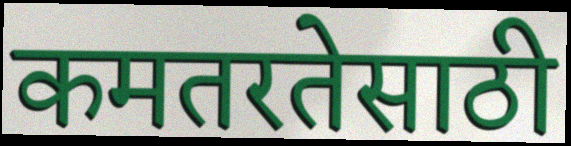
कमतरतेसाठी